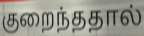
குறைந்ததால்